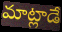
మాట్లాడే